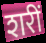
शरीं